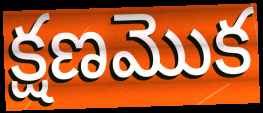
క్షణమొక